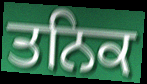
ਤਨਿਕ